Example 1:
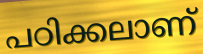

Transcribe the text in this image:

പഠിക്കലാണ്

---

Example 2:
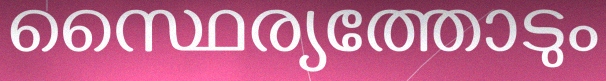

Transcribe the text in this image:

സ്ഥൈര്യത്തോടും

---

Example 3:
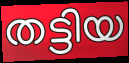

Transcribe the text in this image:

തട്ടിയ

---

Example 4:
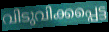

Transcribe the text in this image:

വിടുവിക്കപ്പെട്ട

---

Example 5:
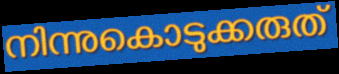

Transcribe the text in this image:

നിന്നുകൊടുക്കരുത്